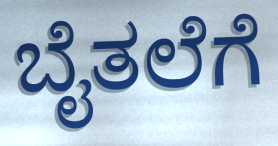
ಬೈತಲೆಗೆ